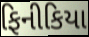
ફિનીકિયા